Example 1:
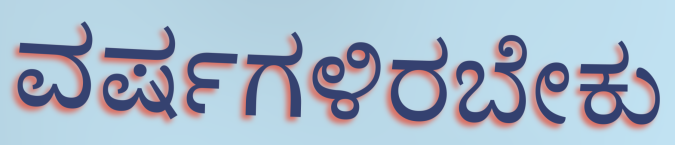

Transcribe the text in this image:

ವರ್ಷಗಳಿರಬೇಕು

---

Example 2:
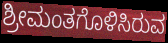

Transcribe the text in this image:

ಶ್ರೀಮಂತಗೊಳಿಸಿರುವ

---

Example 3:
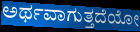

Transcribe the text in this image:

ಅರ್ಥವಾಗುತ್ತದೆಯೋ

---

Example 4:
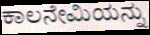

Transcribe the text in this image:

ಕಾಲನೇಮಿಯನ್ನು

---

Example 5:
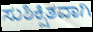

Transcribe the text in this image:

ಸುಶಿಕ್ಷಿತವಾಗಿ